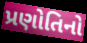
પ્રણોતિનો